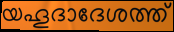
യഹൂദാദേശത്ത്